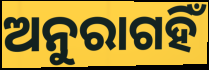
ଅନୁରାଗହିଁ